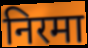
निरमा